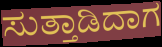
ಸುತ್ತಾಡಿದಾಗ